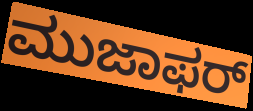
ಮುಜಾಫರ್